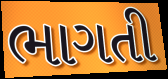
ભાગતી